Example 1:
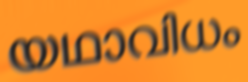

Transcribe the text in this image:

യഥാവിധം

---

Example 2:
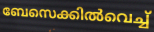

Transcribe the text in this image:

ബേസെക്കിൽവെച്ച്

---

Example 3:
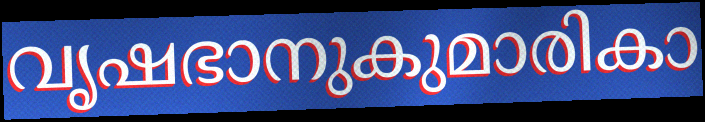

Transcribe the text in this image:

വൃഷഭാനുകുമാരികാ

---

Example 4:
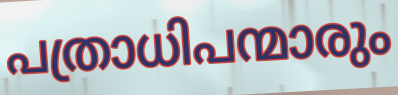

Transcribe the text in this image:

പത്രാധിപന്മാരും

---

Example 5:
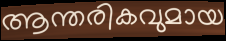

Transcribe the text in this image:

ആന്തരികവുമായ